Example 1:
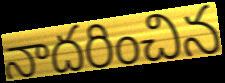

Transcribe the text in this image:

నాదరించిన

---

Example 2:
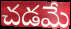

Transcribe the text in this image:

చడమే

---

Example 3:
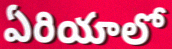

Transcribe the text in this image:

ఏరియాలో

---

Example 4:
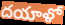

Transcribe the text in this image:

దయాళో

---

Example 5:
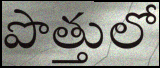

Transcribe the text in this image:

పొత్తులో